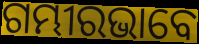
ଗମ୍ଭୀରଭାବେ